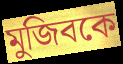
মুজিবকে